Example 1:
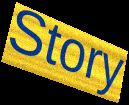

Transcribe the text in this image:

Story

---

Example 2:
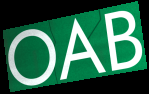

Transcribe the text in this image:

OAB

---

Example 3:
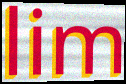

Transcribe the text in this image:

lim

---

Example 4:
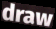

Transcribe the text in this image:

draw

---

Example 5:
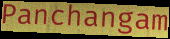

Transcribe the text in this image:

Panchangam